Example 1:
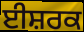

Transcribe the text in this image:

ਈਸ਼ਰਕ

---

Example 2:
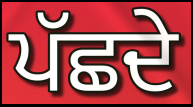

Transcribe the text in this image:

ਪੱਛਦੇ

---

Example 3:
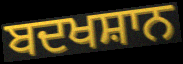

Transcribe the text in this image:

ਬਦਖਸ਼ਾਨ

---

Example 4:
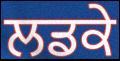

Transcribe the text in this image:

ਲਡਕੇ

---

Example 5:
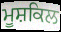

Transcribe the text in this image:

ਮੂਸ਼ਕਿਲ